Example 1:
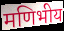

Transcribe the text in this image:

मणिभीय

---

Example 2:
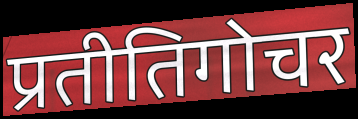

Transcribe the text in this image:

प्रतीतिगोचर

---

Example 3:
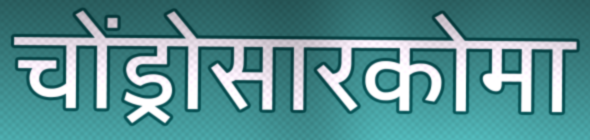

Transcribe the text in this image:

चोंड्रोसारकोमा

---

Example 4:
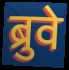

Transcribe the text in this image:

ब्रुवे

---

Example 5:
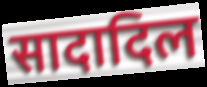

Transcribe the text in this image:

सादादिल